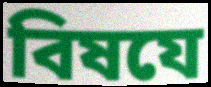
বিষযে